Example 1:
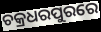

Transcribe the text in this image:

ଚକ୍ରଧରପୁରରେ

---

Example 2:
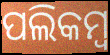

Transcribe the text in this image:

ପଲିକମ୍ବ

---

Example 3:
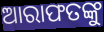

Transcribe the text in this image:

ଆରାଫତଙ୍କୁ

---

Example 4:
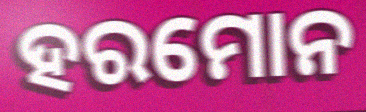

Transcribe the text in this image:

ହରମୋନ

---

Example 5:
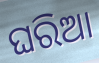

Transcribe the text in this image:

ଘରିଆ